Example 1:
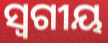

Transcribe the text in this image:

ସ୍ୱଗୀୟ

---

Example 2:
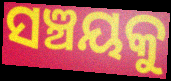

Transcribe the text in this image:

ସଞ୍ଚୟକୁ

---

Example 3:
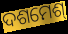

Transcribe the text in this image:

ଦଶମେଶ୍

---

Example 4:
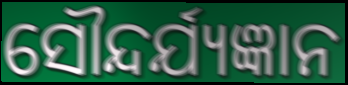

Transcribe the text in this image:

ସୌନ୍ଦର୍ଯ୍ୟଜ୍ଞାନ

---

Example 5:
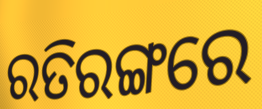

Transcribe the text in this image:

ରତିରଙ୍ଗରେ